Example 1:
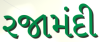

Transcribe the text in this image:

રજામંદી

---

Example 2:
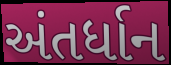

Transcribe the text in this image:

અંતર્ધાન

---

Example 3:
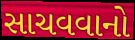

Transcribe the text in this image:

સાચવવાનો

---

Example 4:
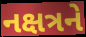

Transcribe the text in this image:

નક્ષત્રને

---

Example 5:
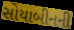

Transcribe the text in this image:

સોયાબીનની